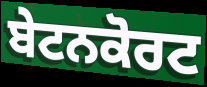
ਬੇਟਨਕੋਰਟ